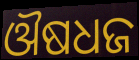
ଔଷଧଜ